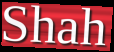
Shah